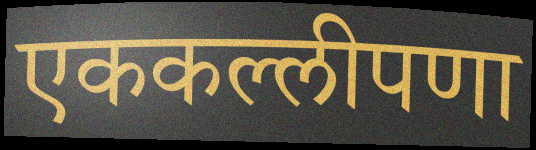
एककल्लीपणा